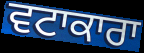
ਵਟਾਕਾਰਾ